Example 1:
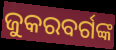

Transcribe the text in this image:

ଜୁକରବର୍ଗଙ୍କ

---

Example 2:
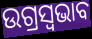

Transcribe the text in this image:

ଉଗ୍ରସ୍ୱଭାବ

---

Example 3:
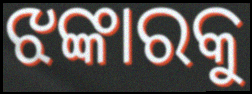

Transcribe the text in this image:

ଝଙ୍କାରକୁ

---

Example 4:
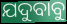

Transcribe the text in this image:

ଯଦୁବାବୁ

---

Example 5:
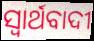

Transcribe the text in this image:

ସ୍ୱାର୍ଥବାଦୀ